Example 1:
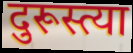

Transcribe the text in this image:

दुरूस्त्या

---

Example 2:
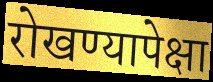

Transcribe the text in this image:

रोखण्यापेक्षा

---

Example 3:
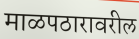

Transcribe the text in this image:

माळपठारावरील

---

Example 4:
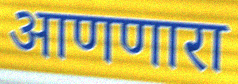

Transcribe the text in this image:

आणणारा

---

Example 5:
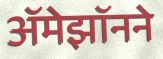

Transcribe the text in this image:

ॲमेझॉनने